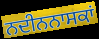
ਨਦੀਨਨਾਸਕਾਂ